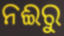
ନଈରୁ